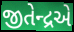
જીતેન્દ્રએ